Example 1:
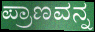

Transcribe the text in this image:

ಪ್ರಾಣವನ್ನ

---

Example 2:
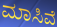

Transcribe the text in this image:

ಮಾಸಿವೆ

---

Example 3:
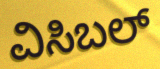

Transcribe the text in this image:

ವಿಸಿಬಲ್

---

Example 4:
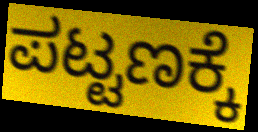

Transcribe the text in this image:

ಪಟ್ಟಣಕ್ಕೆ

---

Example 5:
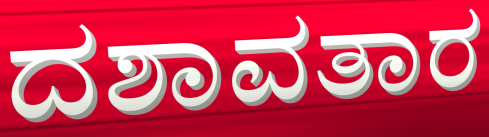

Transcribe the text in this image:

ದಶಾವತಾರ